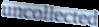
uncollected